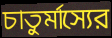
চাতুর্মাস্যের